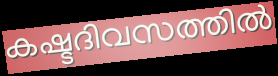
കഷ്ടദിവസത്തിൽ